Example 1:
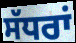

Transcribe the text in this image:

ਸੱਧਰਾਂ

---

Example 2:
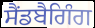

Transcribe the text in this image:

ਸੈਂਡਬੈਗਿੰਗ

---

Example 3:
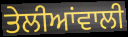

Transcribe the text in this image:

ਤੇਲੀਆਂਵਾਲੀ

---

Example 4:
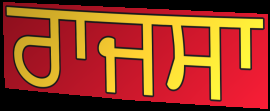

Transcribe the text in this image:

ਰਾਜਸਾ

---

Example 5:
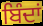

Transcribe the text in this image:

ਬਿੰਦਾਂ